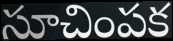
సూచింపక